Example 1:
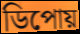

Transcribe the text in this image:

ডিপোয়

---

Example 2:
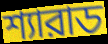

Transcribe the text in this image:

শ্যারাড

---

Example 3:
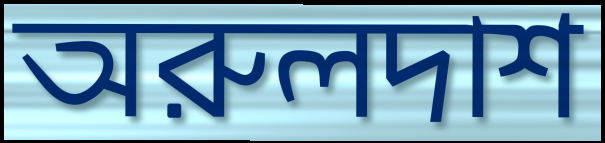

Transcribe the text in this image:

অরুলদাশ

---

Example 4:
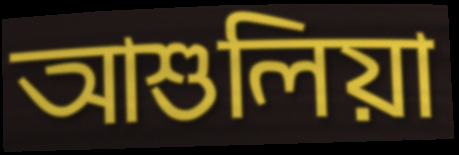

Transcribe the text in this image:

আশুলিয়া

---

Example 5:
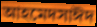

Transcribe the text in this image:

আহমেদসাঈদ